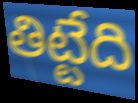
తిట్టేది